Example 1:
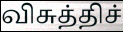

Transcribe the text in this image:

விசுத்திச்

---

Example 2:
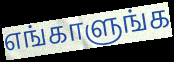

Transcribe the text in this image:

எங்காளுங்க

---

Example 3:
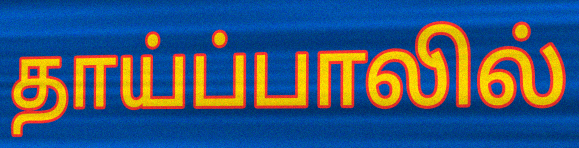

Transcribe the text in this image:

தாய்ப்பாலில்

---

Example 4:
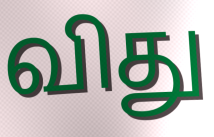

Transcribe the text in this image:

விது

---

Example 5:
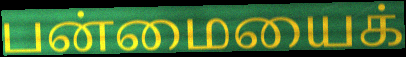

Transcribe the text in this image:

பன்மையைக்